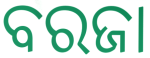
ବରଜା